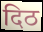
दिठ